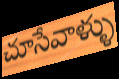
చూసేవాళ్ళు